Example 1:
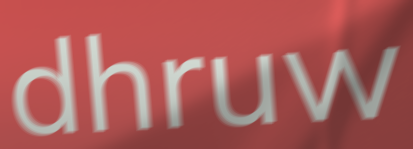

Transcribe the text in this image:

dhruw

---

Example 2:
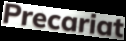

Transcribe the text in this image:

Precariat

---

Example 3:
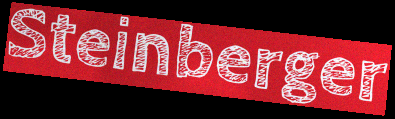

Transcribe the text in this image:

Steinberger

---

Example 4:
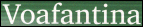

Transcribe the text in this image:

Voafantina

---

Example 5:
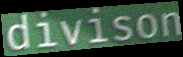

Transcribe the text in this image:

divison